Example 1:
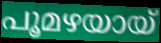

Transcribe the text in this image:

പൂമഴയായ്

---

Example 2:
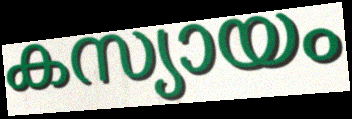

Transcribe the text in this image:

കസ്യായം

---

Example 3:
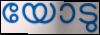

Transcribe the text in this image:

യോടു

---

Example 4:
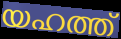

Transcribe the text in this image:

യഹത്ത്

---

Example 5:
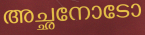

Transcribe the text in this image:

അച്ഛനോടോ